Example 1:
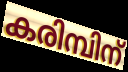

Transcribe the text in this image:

കരിമ്പിന്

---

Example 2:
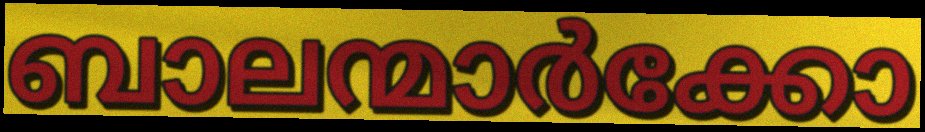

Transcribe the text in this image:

ബാലന്മാർക്കോ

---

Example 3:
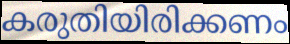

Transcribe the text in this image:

കരുതിയിരിക്കണം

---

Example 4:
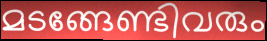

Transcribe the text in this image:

മടങ്ങേണ്ടിവരും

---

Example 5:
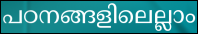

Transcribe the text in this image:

പഠനങ്ങളിലെല്ലാം